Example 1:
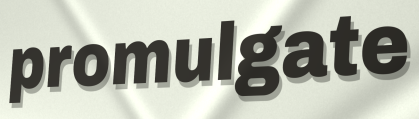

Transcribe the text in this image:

promulgate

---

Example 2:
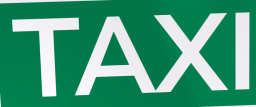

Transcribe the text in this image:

TAXI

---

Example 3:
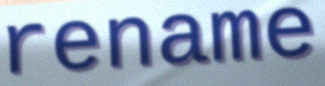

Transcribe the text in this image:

rename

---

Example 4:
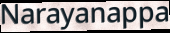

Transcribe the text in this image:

Narayanappa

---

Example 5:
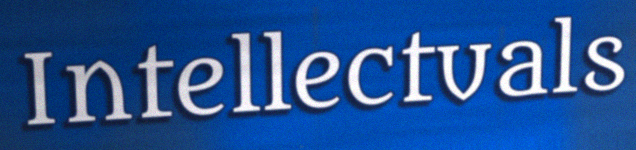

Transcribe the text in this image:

Intellectuals